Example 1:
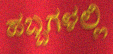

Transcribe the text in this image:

ಹಬ್ಬಗಳಲ್ಲಿ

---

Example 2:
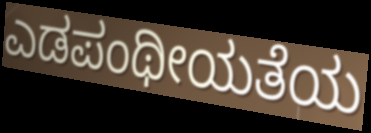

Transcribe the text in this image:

ಎಡಪಂಥೀಯತೆಯ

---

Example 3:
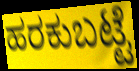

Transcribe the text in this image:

ಹರಕುಬಟ್ಟೆ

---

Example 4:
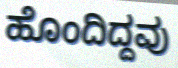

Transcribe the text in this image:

ಹೊಂದಿದ್ದವು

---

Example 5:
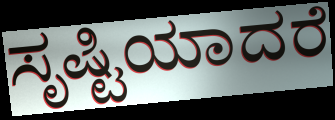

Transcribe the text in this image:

ಸೃಷ್ಟಿಯಾದರೆ